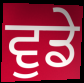
ਵੁਡੇ